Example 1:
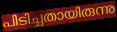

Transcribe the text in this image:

പിടിച്ചതായിരുന്നു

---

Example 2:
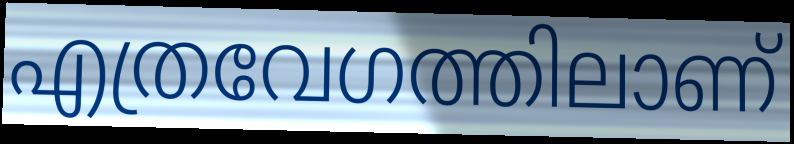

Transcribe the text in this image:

എത്രവേഗത്തിലാണ്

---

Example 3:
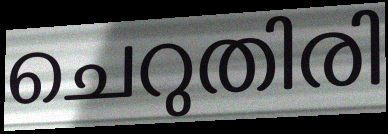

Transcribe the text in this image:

ചെറുതിരി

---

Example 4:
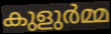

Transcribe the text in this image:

കുളുർമ്മ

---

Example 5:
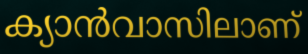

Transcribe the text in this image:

ക്യാൻവാസിലാണ്